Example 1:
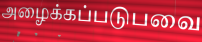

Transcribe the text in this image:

அழைக்கப்படுபவை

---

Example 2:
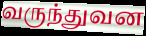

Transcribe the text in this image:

வருந்துவன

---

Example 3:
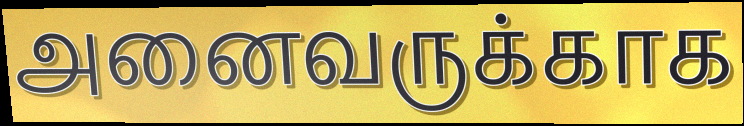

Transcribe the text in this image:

அனைவருக்காக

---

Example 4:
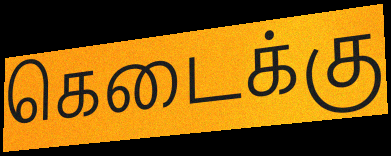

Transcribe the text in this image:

கெடைக்கு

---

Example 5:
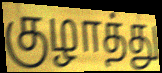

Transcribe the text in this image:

குழாத்து